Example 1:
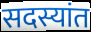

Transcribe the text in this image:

सदस्यांत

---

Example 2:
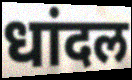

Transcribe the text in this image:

धांदल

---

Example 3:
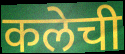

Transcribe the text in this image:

कलेची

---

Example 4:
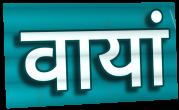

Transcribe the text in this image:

वायां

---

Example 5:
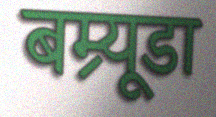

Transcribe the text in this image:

बम्र्यूडा